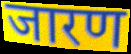
जारण